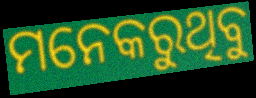
ମନେକରୁଥିବୁ